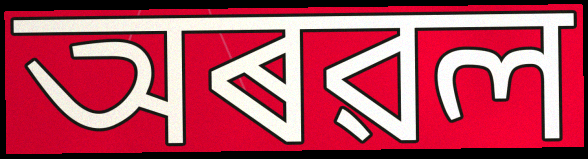
অৰৱল